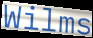
Wilms